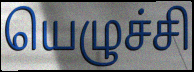
யெழுச்சி